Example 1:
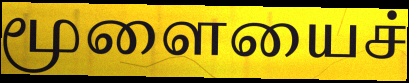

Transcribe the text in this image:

மூளையைச்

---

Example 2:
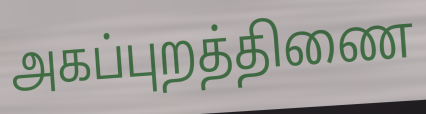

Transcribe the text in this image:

அகப்புறத்திணை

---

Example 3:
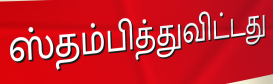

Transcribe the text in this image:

ஸ்தம்பித்துவிட்டது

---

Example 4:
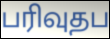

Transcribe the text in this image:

பரிவுதப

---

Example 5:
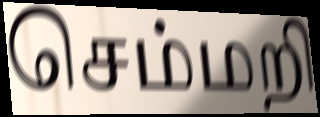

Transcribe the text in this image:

செம்மறி